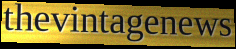
thevintagenews